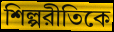
শিল্পরীতিকে